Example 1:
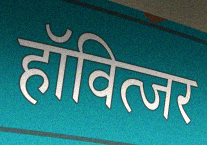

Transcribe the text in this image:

हॉवित्जर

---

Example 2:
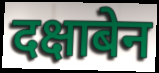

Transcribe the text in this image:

दक्षाबेन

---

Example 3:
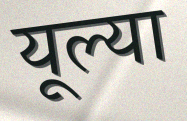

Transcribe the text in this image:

यूल्या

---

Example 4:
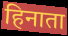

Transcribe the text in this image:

हिनाता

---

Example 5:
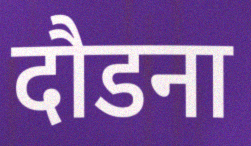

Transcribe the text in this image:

दौडना